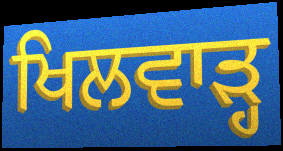
ਖਿਲਵਾੜ੍ਹ